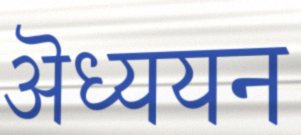
ऄध्ययन